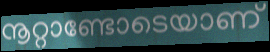
നൂറ്റാണ്ടോടെയാണ്